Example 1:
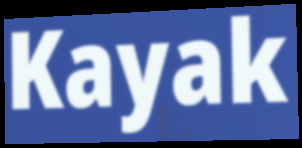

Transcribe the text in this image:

Kayak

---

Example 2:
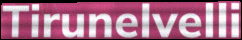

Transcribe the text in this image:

Tirunelvelli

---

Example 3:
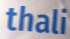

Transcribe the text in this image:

thali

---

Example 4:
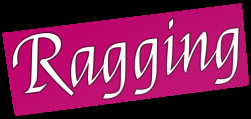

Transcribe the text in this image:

Ragging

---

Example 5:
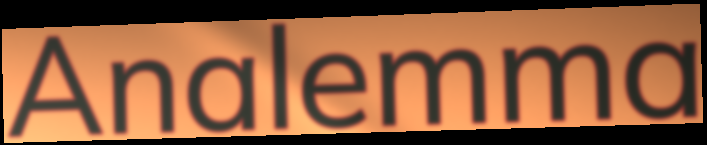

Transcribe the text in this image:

Analemma